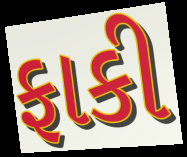
ફાકી